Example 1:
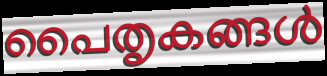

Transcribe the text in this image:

പൈതൃകങ്ങൾ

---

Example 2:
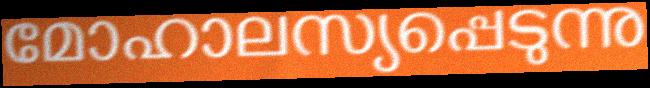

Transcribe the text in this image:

മോഹാലസ്യപ്പെടുന്നു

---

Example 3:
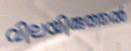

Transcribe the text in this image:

വിലയിരുത്തൽ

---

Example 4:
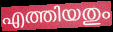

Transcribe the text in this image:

എത്തിയതും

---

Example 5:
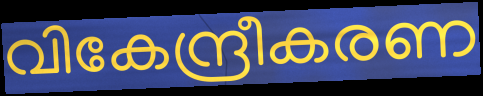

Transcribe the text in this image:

വികേന്ദ്രീകരണ